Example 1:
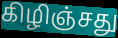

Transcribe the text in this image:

கிழிஞ்சது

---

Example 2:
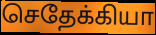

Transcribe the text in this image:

செதேக்கியா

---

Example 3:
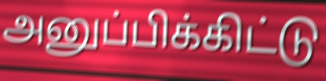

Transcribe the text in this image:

அனுப்பிக்கிட்டு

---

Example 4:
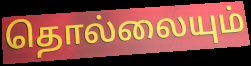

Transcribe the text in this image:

தொல்லையும்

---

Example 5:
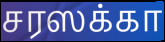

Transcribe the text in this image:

சரஸக்கா